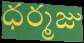
ధర్మజు